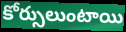
కోర్సులుంటాయి